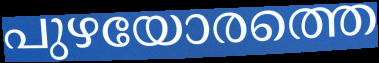
പുഴയോരത്തെ